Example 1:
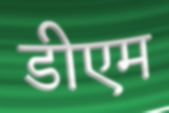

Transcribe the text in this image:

डीएम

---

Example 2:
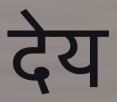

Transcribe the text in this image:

देय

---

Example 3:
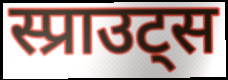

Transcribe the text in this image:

स्प्राउट्स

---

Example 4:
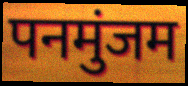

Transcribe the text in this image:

पनमुंजम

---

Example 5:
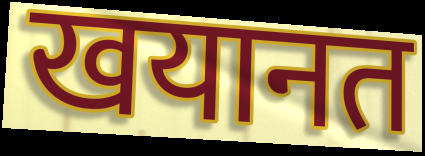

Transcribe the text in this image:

खयानत